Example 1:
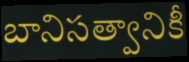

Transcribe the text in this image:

బానిసత్వానికీ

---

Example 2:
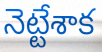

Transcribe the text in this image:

నెట్టేశాక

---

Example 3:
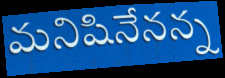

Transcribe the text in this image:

మనిషినేనన్న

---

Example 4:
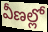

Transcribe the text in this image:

వీణల్లో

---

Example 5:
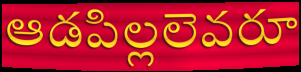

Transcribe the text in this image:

ఆడపిల్లలెవరూ